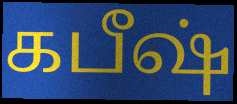
கபீஷ்